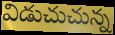
విడుచుచున్న